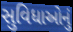
સુવિધાઓનું